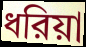
ধরিয়া